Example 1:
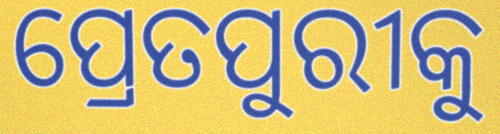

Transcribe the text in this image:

ପ୍ରେତପୁରୀକୁ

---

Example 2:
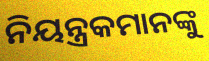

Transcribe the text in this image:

ନିୟନ୍ତ୍ରକମାନଙ୍କୁ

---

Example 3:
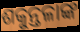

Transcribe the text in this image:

ଶକୁନ୍ତଳାଙ୍କ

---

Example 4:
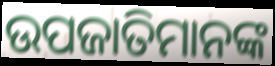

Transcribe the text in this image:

ଉପଜାତିମାନଙ୍କ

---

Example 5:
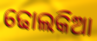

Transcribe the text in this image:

ଢୋଲକିଆ